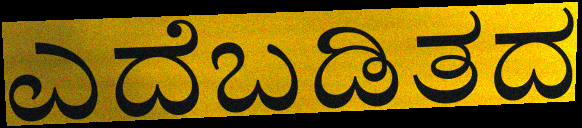
ಎದೆಬಡಿತದ